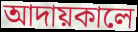
আদায়কালে